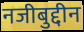
नजीबुद्दीन